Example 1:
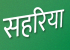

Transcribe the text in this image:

सहरिया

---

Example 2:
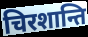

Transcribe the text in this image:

चिरशान्ति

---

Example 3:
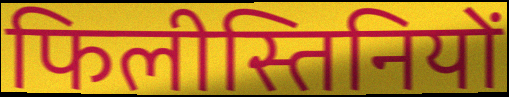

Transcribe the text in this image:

फिलीस्तिनियों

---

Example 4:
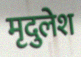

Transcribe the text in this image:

मृदुलेश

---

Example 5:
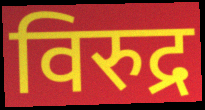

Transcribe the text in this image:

विरुद्र